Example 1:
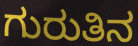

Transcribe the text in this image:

ಗುರುತಿನ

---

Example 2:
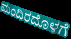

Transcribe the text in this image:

ಮಂದಿರದೊಳಗೆ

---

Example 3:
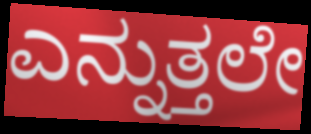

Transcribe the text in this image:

ಎನ್ನುತ್ತಲೇ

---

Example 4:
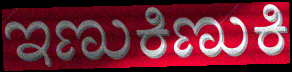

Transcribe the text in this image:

ಇಣುಕಿಣುಕಿ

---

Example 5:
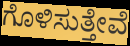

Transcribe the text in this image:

ಗೊಳಿಸುತ್ತೇವೆ